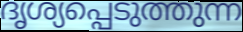
ദൃശ്യപ്പെടുത്തുന്ന